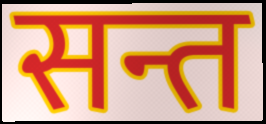
सन्त